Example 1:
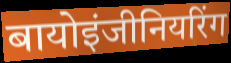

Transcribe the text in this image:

बायोइंजीनियरिंग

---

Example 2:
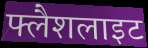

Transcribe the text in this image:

फ्लैशलाइट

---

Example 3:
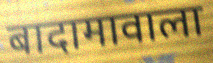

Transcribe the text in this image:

बादामावाला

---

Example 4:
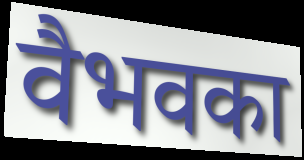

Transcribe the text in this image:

वैभवका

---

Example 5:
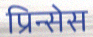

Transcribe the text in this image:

प्रिन्सेस